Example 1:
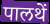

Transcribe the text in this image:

पालथें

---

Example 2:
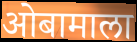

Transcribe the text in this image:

ओबामाला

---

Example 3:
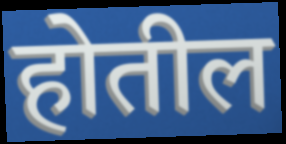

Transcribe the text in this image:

होतील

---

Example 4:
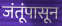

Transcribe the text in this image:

जंतूंपासून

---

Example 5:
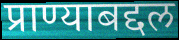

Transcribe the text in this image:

प्राण्याबद्दल